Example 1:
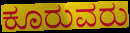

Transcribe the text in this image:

ಕೂರುವರು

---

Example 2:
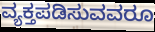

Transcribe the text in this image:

ವ್ಯಕ್ತಪಡಿಸುವವರೂ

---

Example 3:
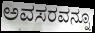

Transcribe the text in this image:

ಅವಸರವನ್ನೂ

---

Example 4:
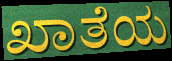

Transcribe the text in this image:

ಖಾತೆಯ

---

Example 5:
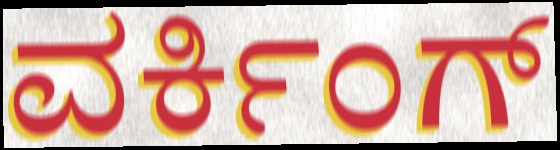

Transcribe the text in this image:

ವರ್ಕಿಂಗ್